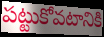
పట్టుకోవటానికి